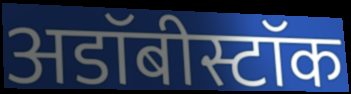
अडॉबीस्टॉक